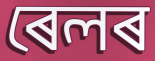
ৰেলৰ